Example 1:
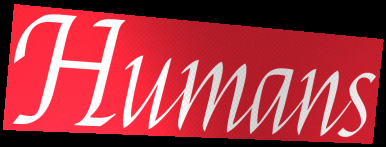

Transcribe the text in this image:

Humans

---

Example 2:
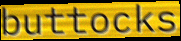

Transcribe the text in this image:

buttocks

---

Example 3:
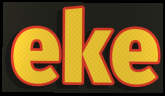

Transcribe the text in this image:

eke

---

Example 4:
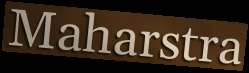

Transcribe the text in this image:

Maharstra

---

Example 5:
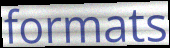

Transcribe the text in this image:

formats